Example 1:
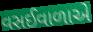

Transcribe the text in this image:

વસઈવાળાએ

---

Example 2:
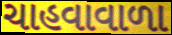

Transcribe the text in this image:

ચાહવાવાળા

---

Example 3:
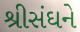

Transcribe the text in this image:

શ્રીસંઘને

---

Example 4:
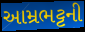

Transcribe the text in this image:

આમ્રભટ્ટની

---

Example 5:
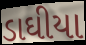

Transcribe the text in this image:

ડાઘીયા